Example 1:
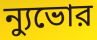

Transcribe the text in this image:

ন্যুভোর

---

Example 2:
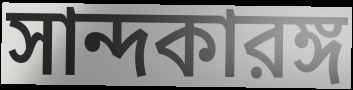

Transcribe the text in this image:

সান্দকারঙ্গ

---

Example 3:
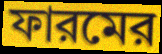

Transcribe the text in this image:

ফারমের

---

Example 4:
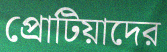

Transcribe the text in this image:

প্রোটিয়াদের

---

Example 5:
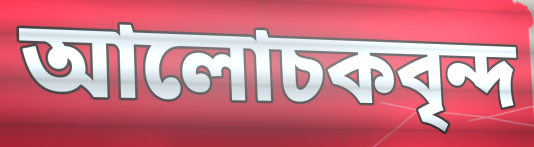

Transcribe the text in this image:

আলোচকবৃন্দ